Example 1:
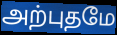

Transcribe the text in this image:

அற்புதமே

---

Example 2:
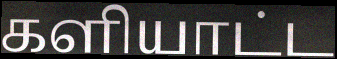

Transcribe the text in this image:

களியாட்ட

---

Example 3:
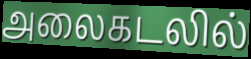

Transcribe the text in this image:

அலைகடலில்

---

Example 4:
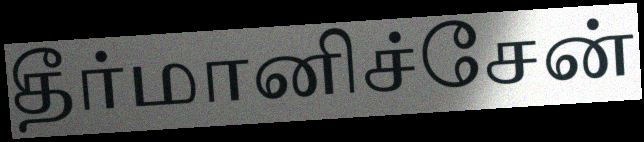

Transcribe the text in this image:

தீர்மானிச்சேன்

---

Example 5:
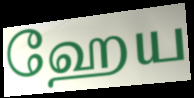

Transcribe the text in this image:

ஹேய